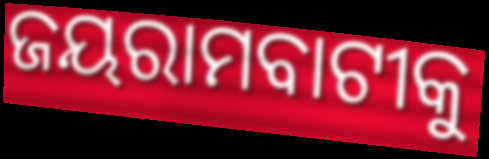
ଜୟରାମବାଟୀକୁ